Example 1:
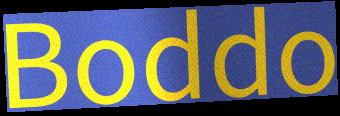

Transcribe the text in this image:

Boddo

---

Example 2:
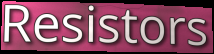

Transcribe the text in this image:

Resistors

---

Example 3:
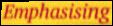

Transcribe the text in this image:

Emphasising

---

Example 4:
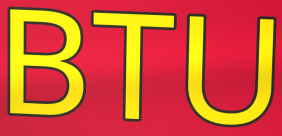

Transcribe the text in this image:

BTU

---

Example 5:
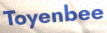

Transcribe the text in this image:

Toyenbee